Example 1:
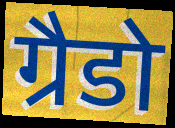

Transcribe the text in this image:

ग्रैडो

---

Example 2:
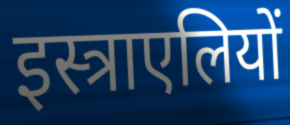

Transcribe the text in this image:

इस्त्राएलियों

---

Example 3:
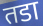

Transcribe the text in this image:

तडा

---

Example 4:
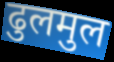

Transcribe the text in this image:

ढुलमुल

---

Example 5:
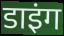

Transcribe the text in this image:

डाइंग